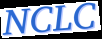
NCLC